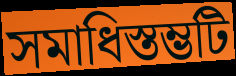
সমাধিস্তম্ভটি